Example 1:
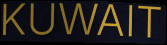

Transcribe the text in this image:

KUWAIT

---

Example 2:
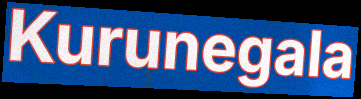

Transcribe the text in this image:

Kurunegala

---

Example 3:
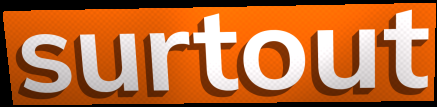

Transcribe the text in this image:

surtout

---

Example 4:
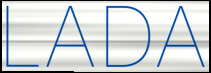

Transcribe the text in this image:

LADA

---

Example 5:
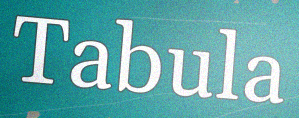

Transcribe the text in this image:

Tabula